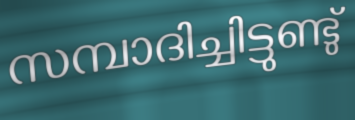
സമ്പാദിച്ചിട്ടുണ്ടു്